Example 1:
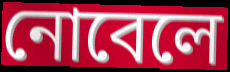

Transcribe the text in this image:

নোবেলে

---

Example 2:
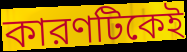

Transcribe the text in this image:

কারণটিকেই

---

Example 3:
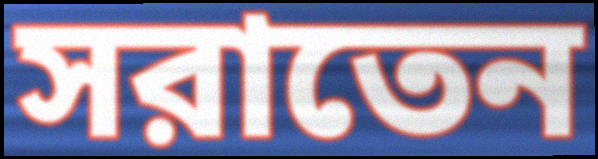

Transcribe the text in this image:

সরাতেন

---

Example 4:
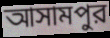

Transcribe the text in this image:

আসামপুর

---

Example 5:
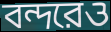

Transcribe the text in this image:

বন্দরেও